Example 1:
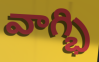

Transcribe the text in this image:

వాగ్భి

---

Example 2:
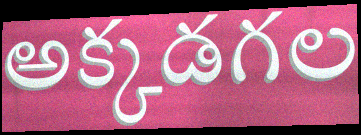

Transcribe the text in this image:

అక్కడగల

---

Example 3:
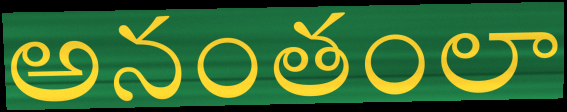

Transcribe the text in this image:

అనంతంలా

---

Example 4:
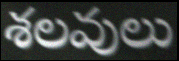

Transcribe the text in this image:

శలవులు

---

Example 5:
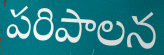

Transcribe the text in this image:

పరిపాలన